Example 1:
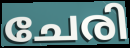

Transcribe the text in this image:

ചേരി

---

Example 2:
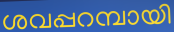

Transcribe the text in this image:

ശവപ്പറമ്പായി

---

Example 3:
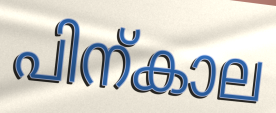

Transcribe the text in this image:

പിന്കാല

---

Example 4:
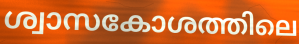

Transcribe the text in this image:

ശ്വാസകോശത്തിലെ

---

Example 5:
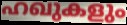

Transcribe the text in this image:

ഹഖുകളും